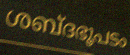
ശബ്ദഭൂപടം